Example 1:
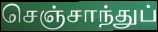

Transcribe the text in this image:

செஞ்சாந்துப்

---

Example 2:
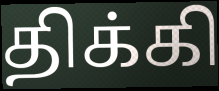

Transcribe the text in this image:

திக்கி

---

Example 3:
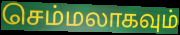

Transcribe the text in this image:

செம்மலாகவும்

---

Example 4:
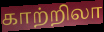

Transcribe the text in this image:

காற்றிலா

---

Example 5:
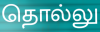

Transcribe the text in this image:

தொல்லு